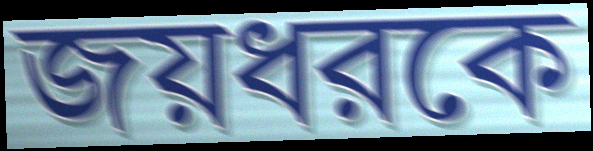
জয়ধরকে